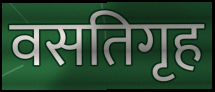
वसतिगृह